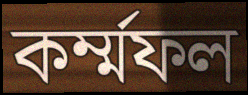
কর্ম্মফল